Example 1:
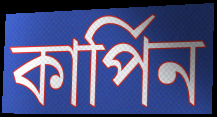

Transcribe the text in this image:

কার্পিন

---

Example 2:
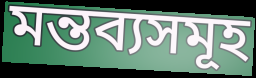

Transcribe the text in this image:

মন্তব্যসমূহ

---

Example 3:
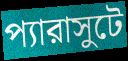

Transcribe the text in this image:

প্যারাসুটে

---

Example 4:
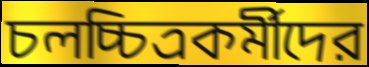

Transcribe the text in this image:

চলচ্চিত্রকর্মীদের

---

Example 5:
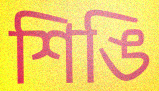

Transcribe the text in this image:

শিঙি